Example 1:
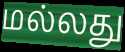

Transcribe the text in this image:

மல்லது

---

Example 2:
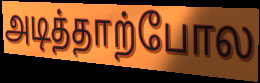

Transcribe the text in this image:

அடித்தாற்போல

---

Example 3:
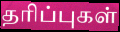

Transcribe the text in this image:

தரிப்புகள்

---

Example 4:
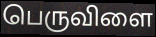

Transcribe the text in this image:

பெருவிளை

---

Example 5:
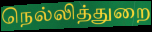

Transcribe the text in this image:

நெல்லித்துறை